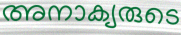
അനാക്യരുടെ